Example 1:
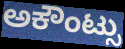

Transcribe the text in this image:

ಅಕೌಂಟ್ಸು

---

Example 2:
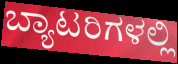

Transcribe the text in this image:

ಬ್ಯಾಟರಿಗಳಲ್ಲಿ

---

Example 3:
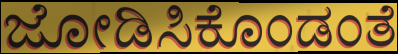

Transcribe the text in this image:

ಜೋಡಿಸಿಕೊಂಡಂತೆ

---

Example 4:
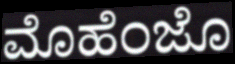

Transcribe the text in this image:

ಮೊಹೆಂಜೊ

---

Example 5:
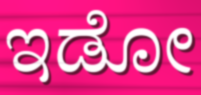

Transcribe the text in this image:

ಇಡೋ